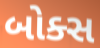
બોક્સ